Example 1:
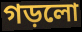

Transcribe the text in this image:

গড়লো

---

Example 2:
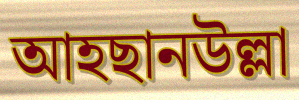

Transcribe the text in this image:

আহছানউল্লা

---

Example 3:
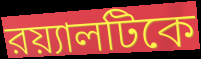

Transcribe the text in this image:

রয়্যালটিকে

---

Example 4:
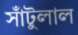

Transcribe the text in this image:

সাঁটুলাল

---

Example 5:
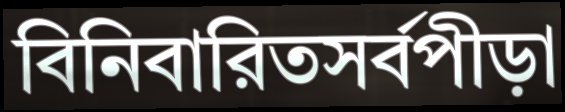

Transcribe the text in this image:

বিনিবারিতসর্বপীড়া